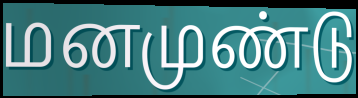
மனமுண்டு